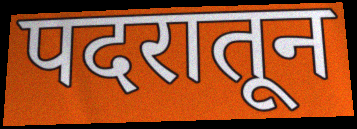
पदरातून